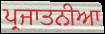
ਪ੍ਰਜਾਤਨੀਆ